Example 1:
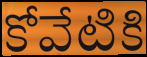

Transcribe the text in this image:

కోవేటికి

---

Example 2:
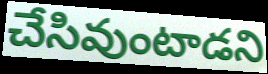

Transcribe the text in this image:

చేసివుంటాడని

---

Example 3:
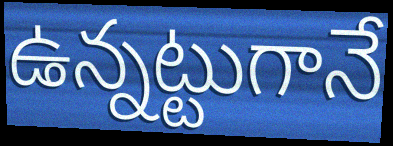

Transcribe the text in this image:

ఉన్నట్టుగానే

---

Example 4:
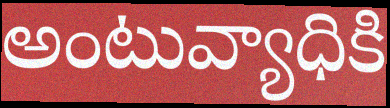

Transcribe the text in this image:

అంటువ్యాధికి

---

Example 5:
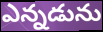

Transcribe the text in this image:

ఎన్నడును